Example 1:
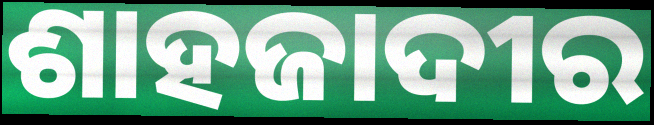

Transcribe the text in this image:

ଶାହଜାଦୀର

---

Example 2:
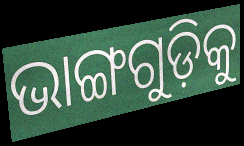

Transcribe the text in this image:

ଭାଙ୍ଗଗୁଡ଼ିକୁ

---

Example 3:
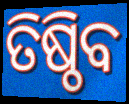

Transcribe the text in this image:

ତିଷ୍ଠିବ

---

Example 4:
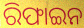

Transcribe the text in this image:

ରିଫାଇନ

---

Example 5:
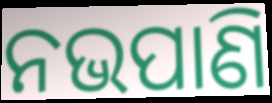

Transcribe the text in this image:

ନଭପାଣି